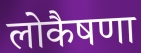
लोकैषणा